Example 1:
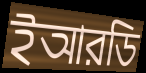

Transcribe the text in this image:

ইআরডি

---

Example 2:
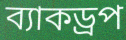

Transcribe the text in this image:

ব্যাকড্রপ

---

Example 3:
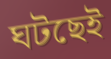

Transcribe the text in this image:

ঘটছেই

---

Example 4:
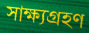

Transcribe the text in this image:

সাক্ষ্যগ্রহণ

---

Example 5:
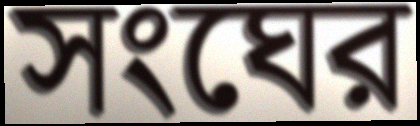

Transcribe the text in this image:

সংঘের